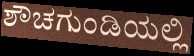
ಶೌಚಗುಂಡಿಯಲ್ಲಿ